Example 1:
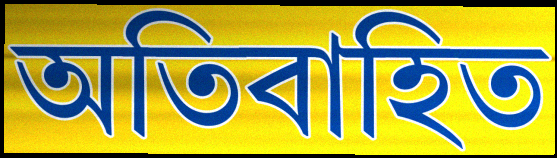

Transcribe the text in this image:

অতিবাহিত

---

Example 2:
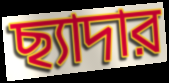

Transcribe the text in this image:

ছ্যাদার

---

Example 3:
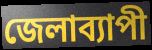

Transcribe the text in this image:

জেলাব্যাপী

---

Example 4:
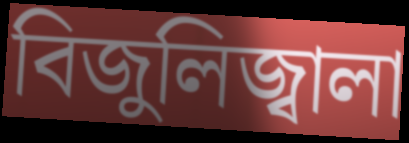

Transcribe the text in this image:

বিজুলিজ্বালা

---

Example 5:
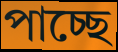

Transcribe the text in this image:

পাচ্ছে